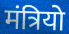
मंत्रियो